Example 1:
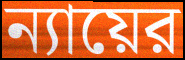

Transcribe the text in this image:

ন্যায়ের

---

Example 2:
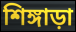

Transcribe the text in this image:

শিঙ্গাড়া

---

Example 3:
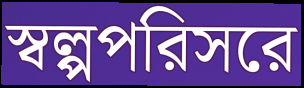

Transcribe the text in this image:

স্বল্পপরিসরে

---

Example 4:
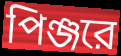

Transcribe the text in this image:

পিঞ্জরে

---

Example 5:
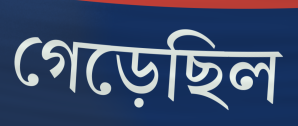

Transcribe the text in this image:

গেড়েছিল